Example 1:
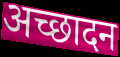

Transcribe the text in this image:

अच्छादन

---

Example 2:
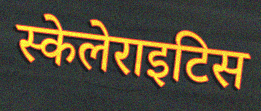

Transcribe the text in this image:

स्केलेराइटिस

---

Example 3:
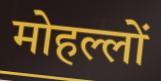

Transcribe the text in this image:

मोहल्लों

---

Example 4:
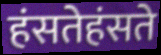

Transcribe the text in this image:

हंसतेहंसते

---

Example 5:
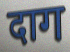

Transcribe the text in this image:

दाग